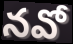
నవో